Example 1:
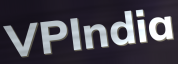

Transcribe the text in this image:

VPIndia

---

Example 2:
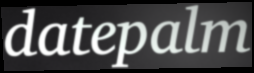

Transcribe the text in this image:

datepalm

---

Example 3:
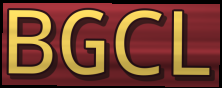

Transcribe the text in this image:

BGCL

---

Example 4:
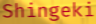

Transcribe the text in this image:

Shingeki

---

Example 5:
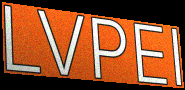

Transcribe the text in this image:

LVPEI